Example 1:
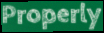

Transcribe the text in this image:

Properly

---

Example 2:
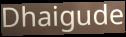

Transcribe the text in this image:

Dhaigude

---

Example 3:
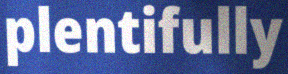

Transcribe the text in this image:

plentifully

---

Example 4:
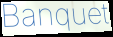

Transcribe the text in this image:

Banquet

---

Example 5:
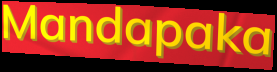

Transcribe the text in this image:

Mandapaka